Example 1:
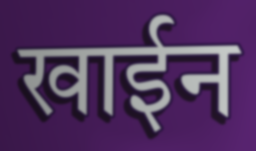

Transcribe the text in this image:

खाईन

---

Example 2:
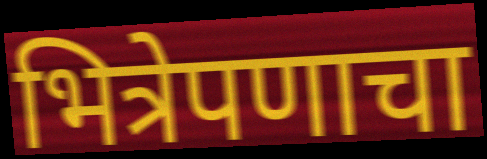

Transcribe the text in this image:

भित्रेपणाचा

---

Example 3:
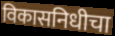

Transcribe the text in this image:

विकासनिधीचा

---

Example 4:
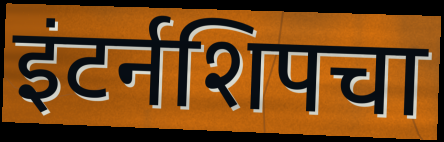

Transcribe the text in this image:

इंटर्नशिपचा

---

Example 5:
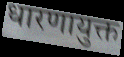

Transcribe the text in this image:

धारणायुक्त